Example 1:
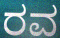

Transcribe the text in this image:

ರವ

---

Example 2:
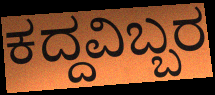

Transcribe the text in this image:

ಕದ್ದವಿಬ್ಬರ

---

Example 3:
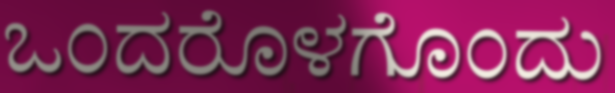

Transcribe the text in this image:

ಒಂದರೊಳಗೊಂದು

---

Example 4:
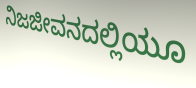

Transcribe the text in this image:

ನಿಜಜೀವನದಲ್ಲಿಯೂ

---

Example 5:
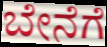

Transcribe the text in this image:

ಬೇನೆಗೆ